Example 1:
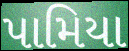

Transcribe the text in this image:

પામિયા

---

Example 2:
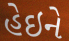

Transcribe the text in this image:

હેઇને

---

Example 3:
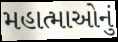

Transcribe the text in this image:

મહાત્માઓનું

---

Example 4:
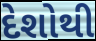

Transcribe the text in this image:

દેશોથી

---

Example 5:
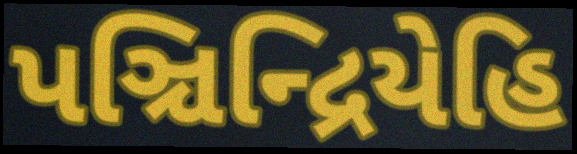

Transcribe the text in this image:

પઞ્ચિન્દ્રિયેહિ